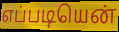
எப்படியென்